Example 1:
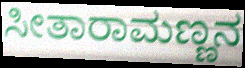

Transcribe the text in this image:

ಸೀತಾರಾಮಣ್ಣನ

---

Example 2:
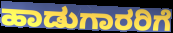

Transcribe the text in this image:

ಹಾಡುಗಾರರಿಗೆ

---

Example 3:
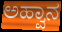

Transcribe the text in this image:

ಅಹ್ವಾನ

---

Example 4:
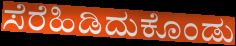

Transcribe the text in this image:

ಸೆರೆಹಿಡಿದುಕೊಂಡು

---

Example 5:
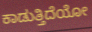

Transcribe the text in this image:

ಕಾಡುತ್ತಿದೆಯೋ